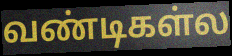
வண்டிகள்ல